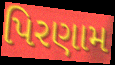
પિરણામ